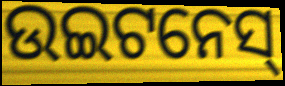
ଉଇଟନେସ୍